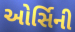
ઓર્સિની